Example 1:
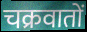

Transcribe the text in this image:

चक्रवातों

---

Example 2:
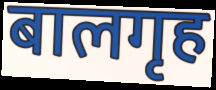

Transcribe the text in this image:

बालगृह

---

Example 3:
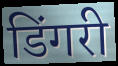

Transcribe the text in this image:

डिंगरी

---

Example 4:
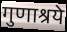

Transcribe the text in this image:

गुणाश्रये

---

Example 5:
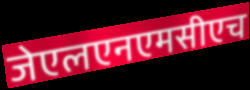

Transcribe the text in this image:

जेएलएनएमसीएच